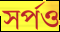
সর্পও